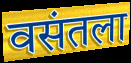
वसंतला